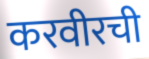
करवीरची